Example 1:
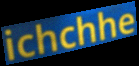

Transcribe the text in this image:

ichchhe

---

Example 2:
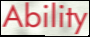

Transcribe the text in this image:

Ability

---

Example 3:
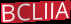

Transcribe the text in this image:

BCLIIA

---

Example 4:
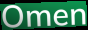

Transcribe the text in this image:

Omen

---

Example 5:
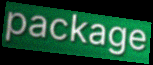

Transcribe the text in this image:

package